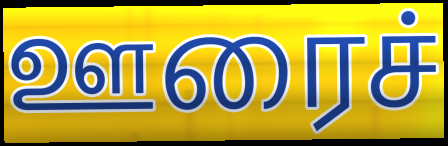
ஊரைச்